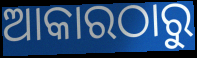
ଆକାରଠାରୁ